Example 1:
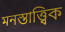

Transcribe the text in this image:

মনস্তাত্ত্বিক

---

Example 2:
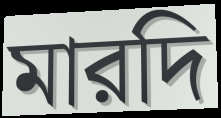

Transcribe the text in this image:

মারদি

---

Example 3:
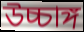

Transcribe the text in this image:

উচ্চাঙ্গ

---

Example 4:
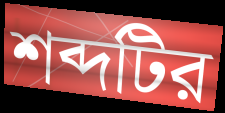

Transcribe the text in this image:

শব্দটির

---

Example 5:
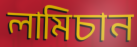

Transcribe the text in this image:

লামিচান